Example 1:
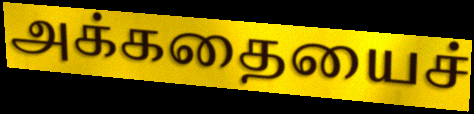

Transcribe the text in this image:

அக்கதையைச்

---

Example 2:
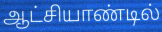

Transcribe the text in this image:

ஆட்சியாண்டில்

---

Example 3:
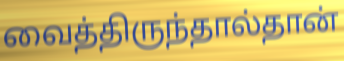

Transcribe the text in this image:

வைத்திருந்தால்தான்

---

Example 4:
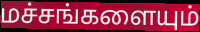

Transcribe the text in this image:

மச்சங்களையும்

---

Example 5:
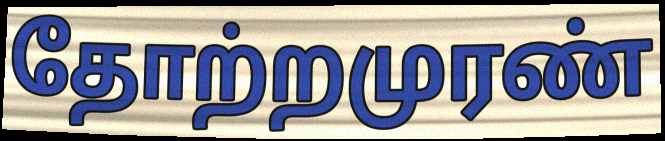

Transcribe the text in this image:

தோற்றமுரண்